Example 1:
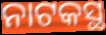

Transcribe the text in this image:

ନାଟକସ୍ଥ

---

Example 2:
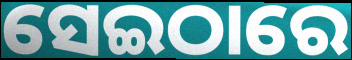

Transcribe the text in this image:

ସେଇଠାରେ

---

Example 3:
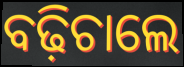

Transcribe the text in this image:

ବଢ଼ିଚାଲେ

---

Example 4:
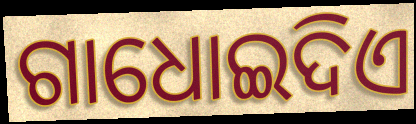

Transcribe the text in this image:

ଗାଧୋଇଦିଏ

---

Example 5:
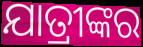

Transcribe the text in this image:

ଯାତ୍ରୀଙ୍କର